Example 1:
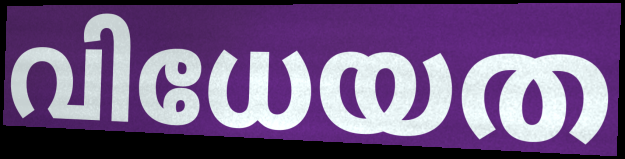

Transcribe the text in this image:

വിധേയത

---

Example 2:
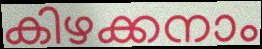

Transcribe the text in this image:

കിഴക്കനാം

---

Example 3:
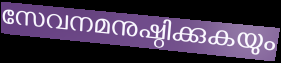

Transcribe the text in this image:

സേവനമനുഷ്ഠിക്കുകയും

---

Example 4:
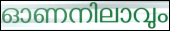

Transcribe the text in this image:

ഓണനിലാവും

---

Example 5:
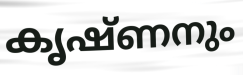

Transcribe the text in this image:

കൃഷ്ണനും